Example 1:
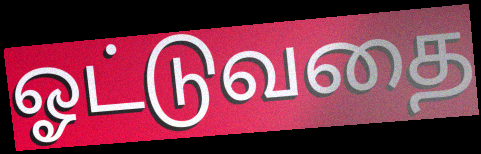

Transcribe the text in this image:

ஓட்டுவதை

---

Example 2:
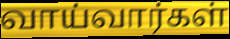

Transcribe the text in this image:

வாய்வார்கள்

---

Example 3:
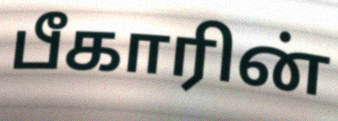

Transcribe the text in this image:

பீகாரின்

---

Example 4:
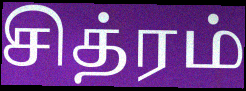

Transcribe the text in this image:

சித்ரம்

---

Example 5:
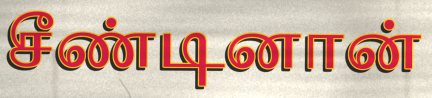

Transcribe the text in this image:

சீண்டினான்